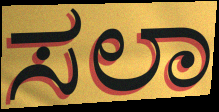
ಸಲಾ